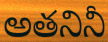
అతనినీ